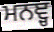
ਮਨਞ੍ਚ